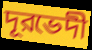
দূরভেদী